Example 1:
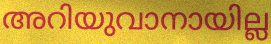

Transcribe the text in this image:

അറിയുവാനായില്ല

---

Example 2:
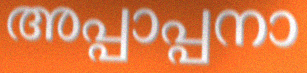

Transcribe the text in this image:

അപ്പാപ്പനാ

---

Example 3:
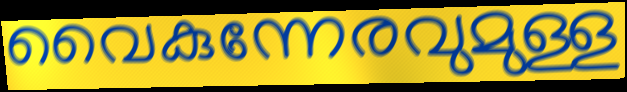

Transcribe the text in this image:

വൈകുന്നേരവുമുള്ള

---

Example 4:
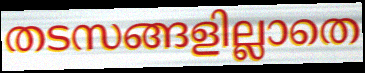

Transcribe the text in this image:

തടസങ്ങളില്ലാതെ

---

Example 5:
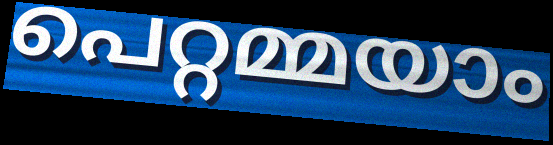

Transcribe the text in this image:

പെറ്റമ്മയാം